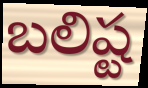
బలిష్ట